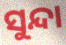
ସୁନ୍ଦା